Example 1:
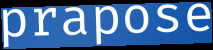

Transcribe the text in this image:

prapose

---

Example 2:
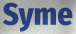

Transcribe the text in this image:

Syme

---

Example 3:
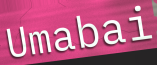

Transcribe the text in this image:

Umabai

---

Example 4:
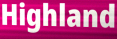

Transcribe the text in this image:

Highland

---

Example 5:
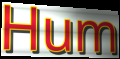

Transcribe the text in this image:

Hum